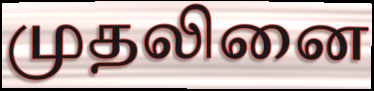
முதலினை